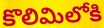
కొలిమిలోకి